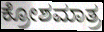
ಕ್ರೋಶಮಾತ್ರ